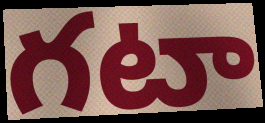
గటా